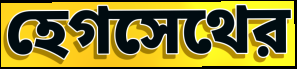
হেগসেথের